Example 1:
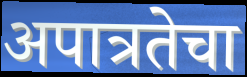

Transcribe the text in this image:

अपात्रतेचा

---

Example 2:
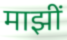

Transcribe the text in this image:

माझीं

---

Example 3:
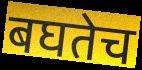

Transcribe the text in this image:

बघतेच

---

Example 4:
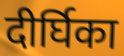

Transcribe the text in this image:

दीर्घिका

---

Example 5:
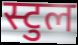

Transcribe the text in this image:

स्टुल